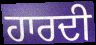
ਹਾਰਦੀ